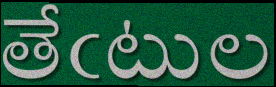
తేఁటుల